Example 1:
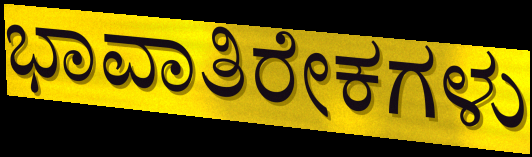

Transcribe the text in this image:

ಭಾವಾತಿರೇಕಗಳು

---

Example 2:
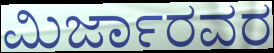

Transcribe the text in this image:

ಮಿರ್ಜಾರವರ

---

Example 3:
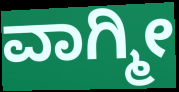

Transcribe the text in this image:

ವಾಗ್ಮೀ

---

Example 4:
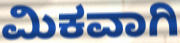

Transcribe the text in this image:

ಮಿಕವಾಗಿ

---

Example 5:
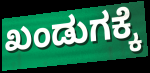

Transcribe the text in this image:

ಖಂಡುಗಕ್ಕೆ